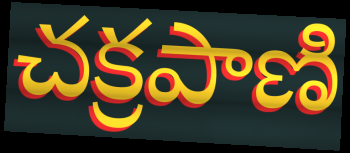
చక్రపాణి